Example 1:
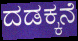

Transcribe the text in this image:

ದಡಕ್ಕನೆ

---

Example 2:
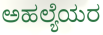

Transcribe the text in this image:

ಅಹಲ್ಯೆಯರ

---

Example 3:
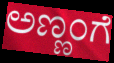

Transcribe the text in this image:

ಅಣ್ಣಂಗೆ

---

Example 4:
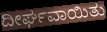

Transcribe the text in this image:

ದೀರ್ಘವಾಯಿತು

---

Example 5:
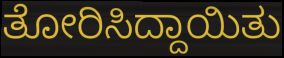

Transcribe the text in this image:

ತೋರಿಸಿದ್ದಾಯಿತು